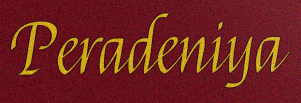
Peradeniya